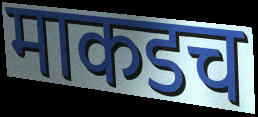
माकडच